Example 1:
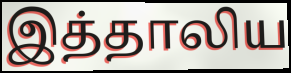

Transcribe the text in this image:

இத்தாலிய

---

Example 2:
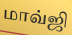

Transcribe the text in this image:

மாவ்ஜி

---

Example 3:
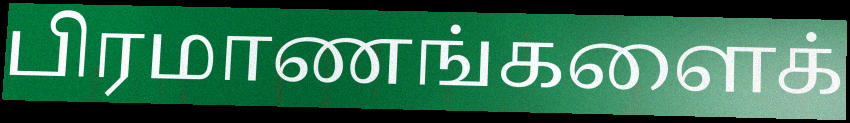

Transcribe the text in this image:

பிரமாணங்களைக்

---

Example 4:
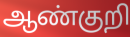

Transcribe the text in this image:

ஆண்குறி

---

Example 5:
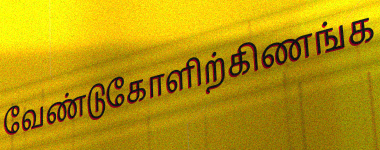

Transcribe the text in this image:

வேண்டுகோளிற்கிணங்க